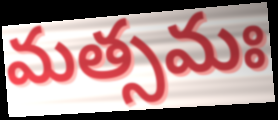
మత్సమః